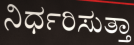
ನಿರ್ಧರಿಸುತ್ತಾ